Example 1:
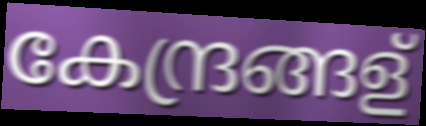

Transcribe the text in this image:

കേന്ദ്രങ്ങള്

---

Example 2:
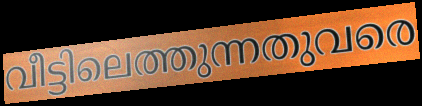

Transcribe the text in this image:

വീട്ടിലെത്തുന്നതുവരെ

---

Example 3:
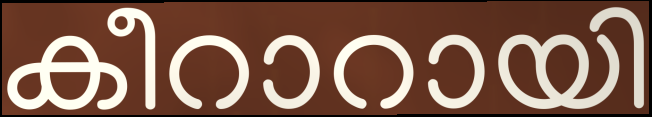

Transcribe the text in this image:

കീറാറായി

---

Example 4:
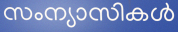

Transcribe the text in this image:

സംന്യാസികൾ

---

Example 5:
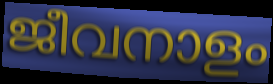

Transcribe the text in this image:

ജീവനാളം